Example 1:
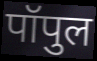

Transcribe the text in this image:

पॉपुल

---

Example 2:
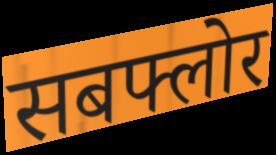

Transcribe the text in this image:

सबफ्लोर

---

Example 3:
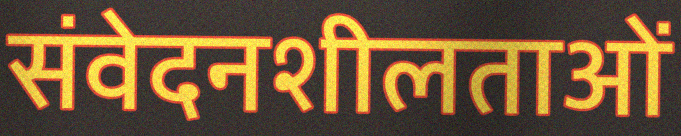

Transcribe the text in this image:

संवेदनशीलताओं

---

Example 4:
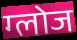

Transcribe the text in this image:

ग्लोज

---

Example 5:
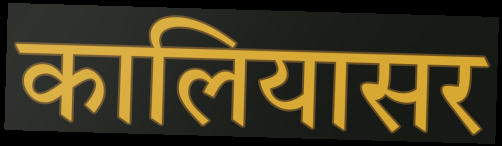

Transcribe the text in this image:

कालियासर